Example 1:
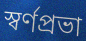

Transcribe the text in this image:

স্বর্ণপ্রভা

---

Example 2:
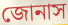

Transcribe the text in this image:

জোনাস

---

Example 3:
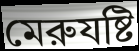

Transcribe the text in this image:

মেরুযষ্টি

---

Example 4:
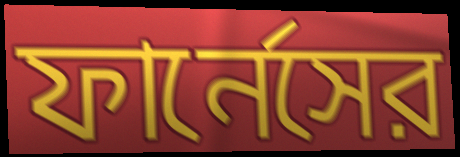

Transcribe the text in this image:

ফার্নেসের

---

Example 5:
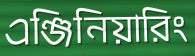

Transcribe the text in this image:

এঞ্জিনিয়ারিং